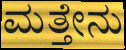
ಮತ್ತೇನು